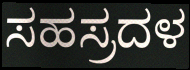
ಸಹಸ್ರದಳ